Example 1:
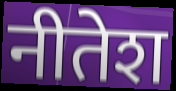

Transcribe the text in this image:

नीतेश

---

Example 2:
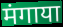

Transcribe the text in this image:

मंगाया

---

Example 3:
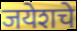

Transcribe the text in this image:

जयेशचे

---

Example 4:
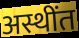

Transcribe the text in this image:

अस्थींत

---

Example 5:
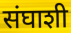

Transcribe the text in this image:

संघाशी